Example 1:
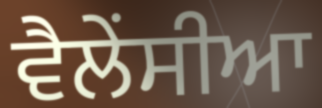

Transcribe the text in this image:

ਵੈਲੇਂਸੀਆ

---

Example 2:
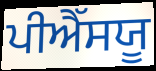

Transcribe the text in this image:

ਪੀਐੱਸਯੂ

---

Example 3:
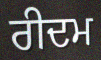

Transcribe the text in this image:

ਰੀਦਮ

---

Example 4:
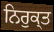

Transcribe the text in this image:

ਨਿਰੁਕ੍ਤ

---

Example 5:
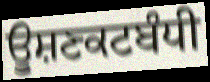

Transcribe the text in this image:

ਊਸ਼ਣਕਟਬੰਧੀ